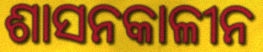
ଶାସନକାଳୀନ